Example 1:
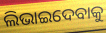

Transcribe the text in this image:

ଲିଭାଇଦେବାକୁ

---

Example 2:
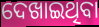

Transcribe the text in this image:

ଦେଖାଇଥିବା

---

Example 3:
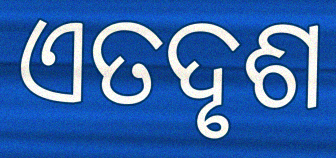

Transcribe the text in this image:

ଏତଦୃଶ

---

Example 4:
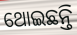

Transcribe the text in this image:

ଥୋଇଛନ୍ତି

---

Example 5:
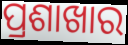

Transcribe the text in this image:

ପ୍ରଶାଖାର